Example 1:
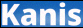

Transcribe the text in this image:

Kanis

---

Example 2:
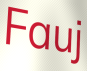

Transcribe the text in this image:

Fauj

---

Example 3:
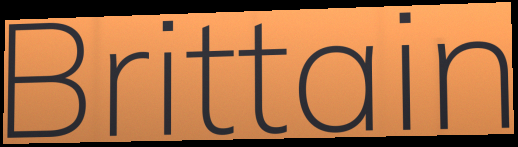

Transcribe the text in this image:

Brittain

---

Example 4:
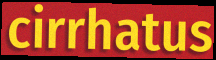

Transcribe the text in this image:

cirrhatus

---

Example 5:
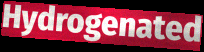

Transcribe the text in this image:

Hydrogenated